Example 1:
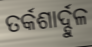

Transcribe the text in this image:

ତର୍କଶାର୍ଦ୍ଦୁଳ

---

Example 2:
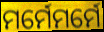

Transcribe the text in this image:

ମର୍ମେମର୍ମେ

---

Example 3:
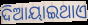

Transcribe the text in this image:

ଦିଆୟାଇଥାଏ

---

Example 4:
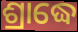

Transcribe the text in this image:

ଶ୍ରାଦ୍ଧେ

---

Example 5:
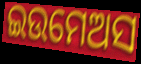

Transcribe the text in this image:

ଇଉମେଅସ